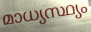
മാധ്യസ്ഥ്യം